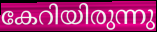
കേറിയിരുന്നു